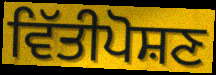
ਵਿੱਤੀਪੋਸ਼ਣ